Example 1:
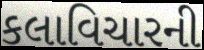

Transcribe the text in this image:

કલાવિચારની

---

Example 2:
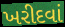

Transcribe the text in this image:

ખરીદવાં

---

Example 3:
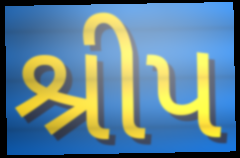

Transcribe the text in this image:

શ્રીપ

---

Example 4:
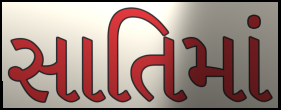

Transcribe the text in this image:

સાતિમાં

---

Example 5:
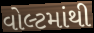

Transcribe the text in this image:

વોલ્ટમાંથી